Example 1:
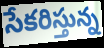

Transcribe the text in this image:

సేకరిస్తున్న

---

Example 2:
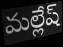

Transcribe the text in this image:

మల్లేష్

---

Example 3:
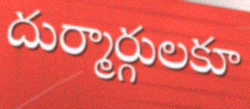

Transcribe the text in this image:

దుర్మార్గులకూ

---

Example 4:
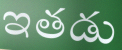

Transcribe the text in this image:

ఇతడు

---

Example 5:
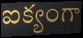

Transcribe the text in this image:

ఐక్యంగా